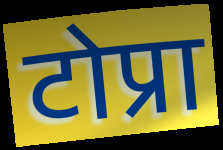
टोप्रा